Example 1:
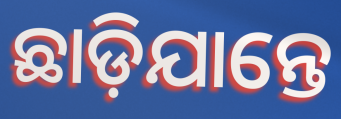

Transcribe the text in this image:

ଛାଡ଼ିଯାନ୍ତେ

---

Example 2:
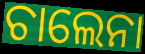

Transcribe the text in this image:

ଚାଲେନା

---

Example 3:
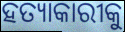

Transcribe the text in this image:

ହତ୍ୟାକାରୀକୁ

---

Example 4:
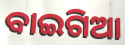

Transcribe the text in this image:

ବାଇଗିଆ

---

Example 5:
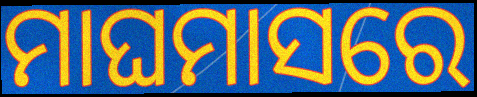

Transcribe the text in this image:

ମାଘମାସରେ